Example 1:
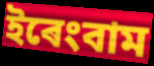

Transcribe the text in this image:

ইৰেংবাম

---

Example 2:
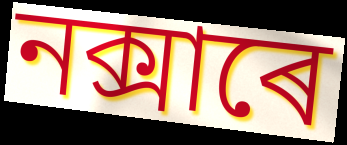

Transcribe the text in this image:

নক্সাৰে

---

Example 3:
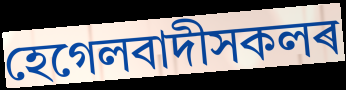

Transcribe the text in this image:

হেগেলবাদীসকলৰ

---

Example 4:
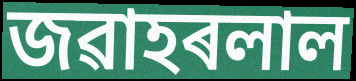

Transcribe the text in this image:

জৱাহৰলাল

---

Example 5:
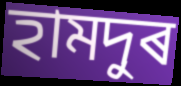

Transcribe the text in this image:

হামদুৰ